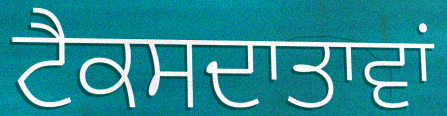
ਟੈਕਸਦਾਤਾਵਾਂ